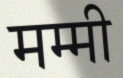
मम्मी